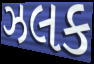
ઝલક